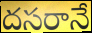
దసరానే